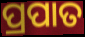
ପ୍ରପାତ